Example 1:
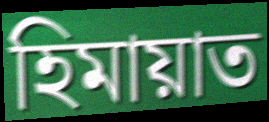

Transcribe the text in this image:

হিমায়াত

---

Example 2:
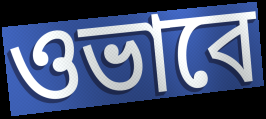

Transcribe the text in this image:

ওভাবে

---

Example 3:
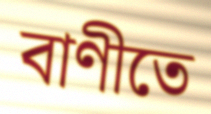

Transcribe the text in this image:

বাণীতে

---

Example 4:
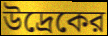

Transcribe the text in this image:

উদ্রেকের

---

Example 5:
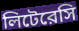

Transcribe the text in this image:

লিটেরেসি